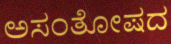
ಅಸಂತೋಷದ